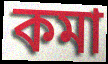
কমা